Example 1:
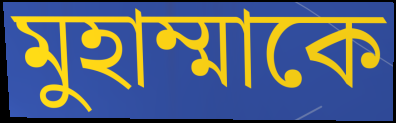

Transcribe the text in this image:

মুহাম্মাকে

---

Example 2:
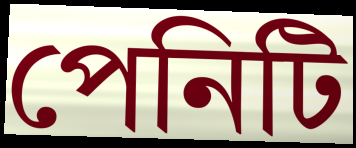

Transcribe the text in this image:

পেনিটি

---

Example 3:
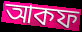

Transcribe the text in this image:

আকফ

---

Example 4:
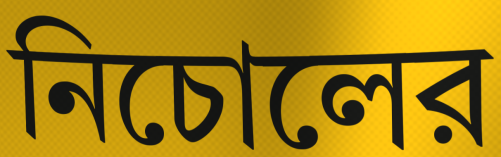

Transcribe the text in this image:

নিচোলের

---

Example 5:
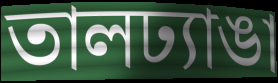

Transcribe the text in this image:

তালঢ্যাঙা